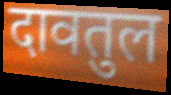
दावतुल